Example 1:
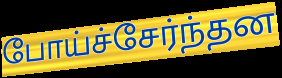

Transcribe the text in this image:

போய்ச்சேர்ந்தன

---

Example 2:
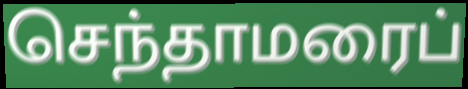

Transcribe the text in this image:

செந்தாமரைப்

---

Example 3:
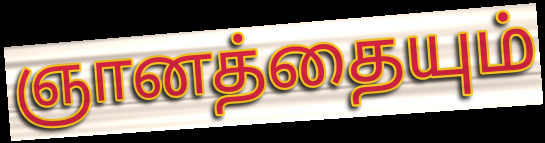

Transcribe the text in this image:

ஞானத்தையும்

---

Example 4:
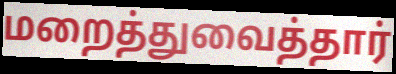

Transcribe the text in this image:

மறைத்துவைத்தார்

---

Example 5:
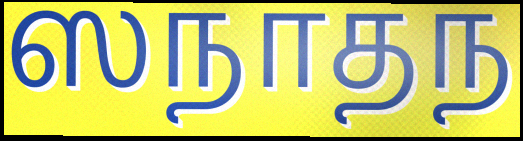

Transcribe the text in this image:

ஸநாதந